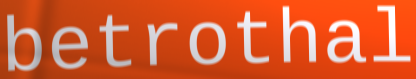
betrothal